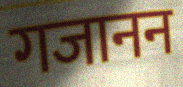
गजानन